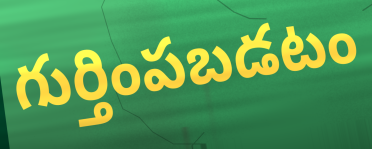
గుర్తింపబడటం